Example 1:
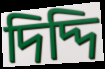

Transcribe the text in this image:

দিদ্দি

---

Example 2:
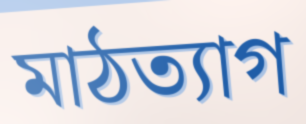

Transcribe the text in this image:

মাঠত্যাগ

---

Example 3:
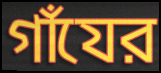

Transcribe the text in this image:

গাঁযের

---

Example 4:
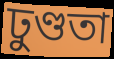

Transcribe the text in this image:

ঢুণ্ডতা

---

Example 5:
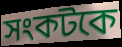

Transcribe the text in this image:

সংকটকে